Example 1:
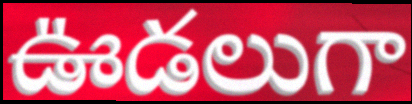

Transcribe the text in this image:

ఊడలుగా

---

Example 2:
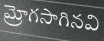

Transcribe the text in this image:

మ్రోగసాగినవి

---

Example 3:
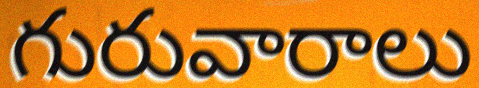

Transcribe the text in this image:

గురువారాలు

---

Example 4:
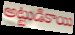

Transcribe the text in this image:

అట్టుడికాయి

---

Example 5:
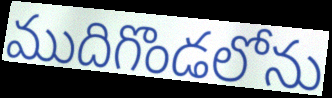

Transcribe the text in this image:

ముదిగొండలోను